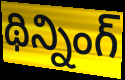
థిన్నింగ్